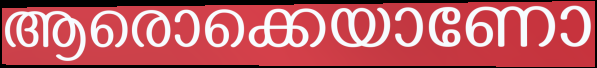
ആരൊക്കെയാണോ